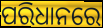
ପରିଧାନରେ